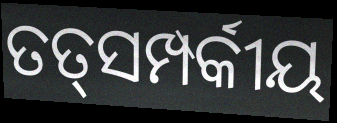
ତତ୍‍ସମ୍ପର୍କୀୟ